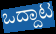
ಒದ್ದಾಟ